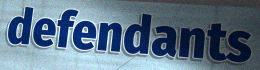
defendants